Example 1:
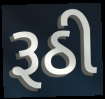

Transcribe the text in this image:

રૂઠી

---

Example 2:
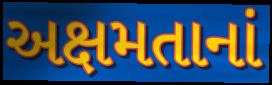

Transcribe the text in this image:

અક્ષમતાનાં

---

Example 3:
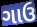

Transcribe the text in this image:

ગાઉ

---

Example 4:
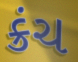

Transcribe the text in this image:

ક્રંચ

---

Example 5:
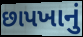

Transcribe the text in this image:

છાપખાનું